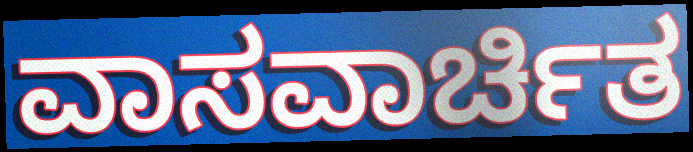
ವಾಸವಾರ್ಚಿತ